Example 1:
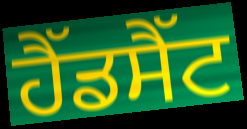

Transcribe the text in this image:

ਹੈੱਡਸੈੱਟ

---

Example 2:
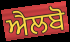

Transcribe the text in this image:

ਐਲਬੋ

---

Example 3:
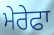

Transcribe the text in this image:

ਮੇਰੇਫਾ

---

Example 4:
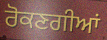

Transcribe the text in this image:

ਰੋਕਣਗੀਆਂ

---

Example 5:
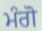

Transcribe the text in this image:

ਮੰਗੋ